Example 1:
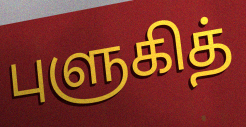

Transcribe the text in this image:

புளுகித்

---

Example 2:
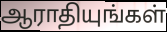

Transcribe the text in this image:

ஆராதியுங்கள்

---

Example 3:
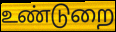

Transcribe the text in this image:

உண்டுறை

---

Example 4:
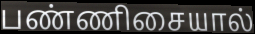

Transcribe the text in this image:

பண்ணிசையால்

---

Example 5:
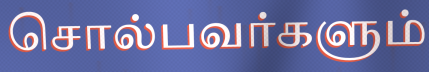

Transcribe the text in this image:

சொல்பவர்களும்